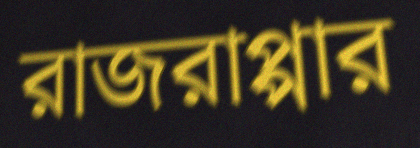
রাজরাপ্পার